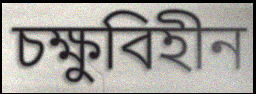
চক্ষুবিহীন